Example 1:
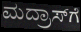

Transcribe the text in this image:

ಮದ್ರಾಸ್‍ಗೆ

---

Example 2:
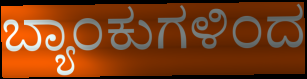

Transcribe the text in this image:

ಬ್ಯಾಂಕುಗಳಿಂದ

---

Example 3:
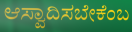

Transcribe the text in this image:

ಆಸ್ವಾದಿಸಬೇಕೆಂಬ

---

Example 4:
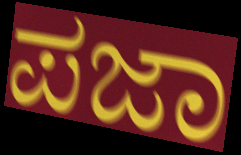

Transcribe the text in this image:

ಪಜಾ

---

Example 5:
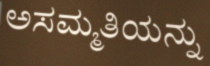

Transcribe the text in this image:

ಅಸಮ್ಮತಿಯನ್ನು